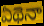
ఏథెనా